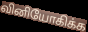
வினியோகிக்க